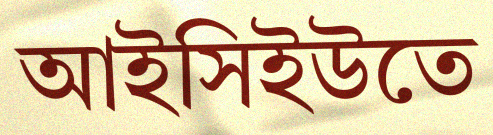
আইসিইউতে